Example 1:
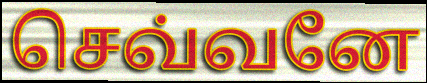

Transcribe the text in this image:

செவ்வனே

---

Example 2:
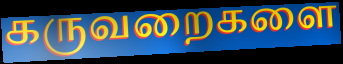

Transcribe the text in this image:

கருவறைகளை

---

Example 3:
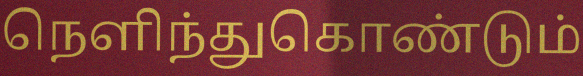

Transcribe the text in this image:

நெளிந்துகொண்டும்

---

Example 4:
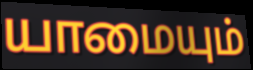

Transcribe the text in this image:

யாமையும்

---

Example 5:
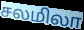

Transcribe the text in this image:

சலமிலா